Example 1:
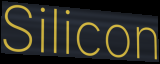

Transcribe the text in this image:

Silicon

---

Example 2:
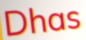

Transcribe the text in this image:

Dhas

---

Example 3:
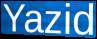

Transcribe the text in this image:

Yazid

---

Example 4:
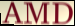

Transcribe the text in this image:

AMD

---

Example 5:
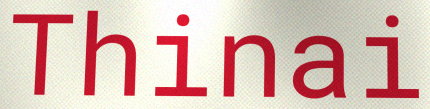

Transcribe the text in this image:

Thinai